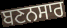
ਬਣਨਸਾਰ